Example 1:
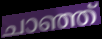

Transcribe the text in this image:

ചാഞ്ഞ്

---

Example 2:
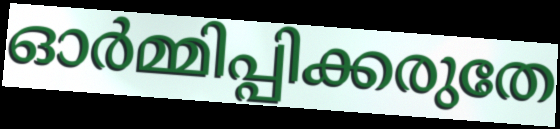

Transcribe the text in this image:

ഓർമ്മിപ്പിക്കരുതേ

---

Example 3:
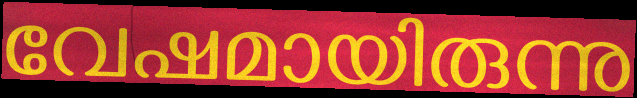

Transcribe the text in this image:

വേഷമായിരുന്നു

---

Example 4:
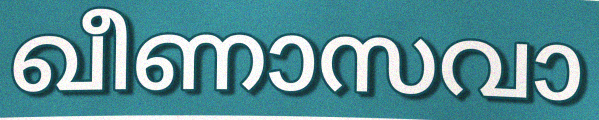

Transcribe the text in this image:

ഖീണാസവാ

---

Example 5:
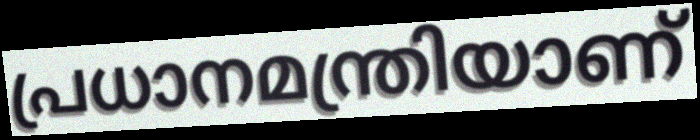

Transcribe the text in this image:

പ്രധാനമന്ത്രിയാണ്